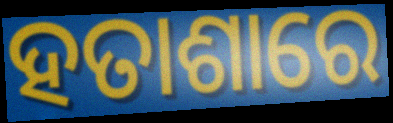
ହତାଶାରେ